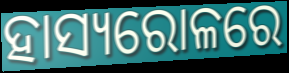
ହାସ୍ୟରୋଳରେ